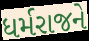
ધર્મરાજને